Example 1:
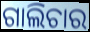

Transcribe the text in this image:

ଗାଲିଚାର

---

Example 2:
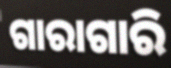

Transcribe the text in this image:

ଗାରାଗାରି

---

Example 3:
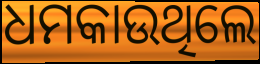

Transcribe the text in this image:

ଧମକାଉଥିଲେ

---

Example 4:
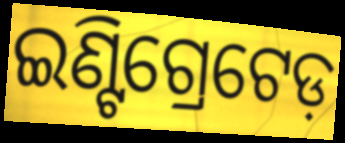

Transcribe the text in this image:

ଇଣ୍ଟିଗ୍ରେଟେଡ଼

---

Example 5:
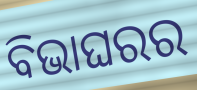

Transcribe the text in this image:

ବିଭାଘରର